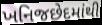
ખનિજછેદમાંથી